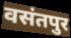
वसंतपुर